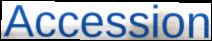
Accession